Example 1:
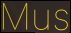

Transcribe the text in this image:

Mus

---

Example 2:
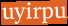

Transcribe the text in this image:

uyirpu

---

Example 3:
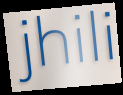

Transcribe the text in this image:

jhili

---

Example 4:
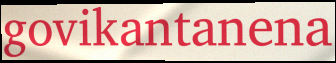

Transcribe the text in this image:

govikantanena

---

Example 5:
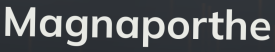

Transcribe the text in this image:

Magnaporthe